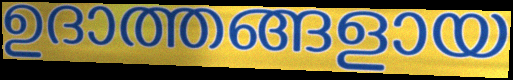
ഉദാത്തങ്ങളായ